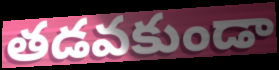
తడవకుండా